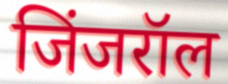
जिंजरॉल